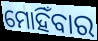
ମୋହିଁବାର